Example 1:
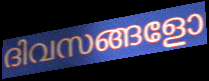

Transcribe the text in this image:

ദിവസങ്ങളോ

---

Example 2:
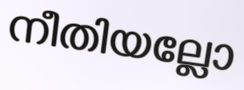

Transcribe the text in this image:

നീതിയല്ലോ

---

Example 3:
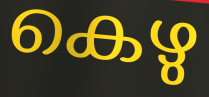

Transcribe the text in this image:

കെഴു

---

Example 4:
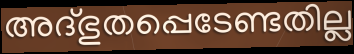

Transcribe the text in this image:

അദ്ഭുതപ്പെടേണ്ടതില്ല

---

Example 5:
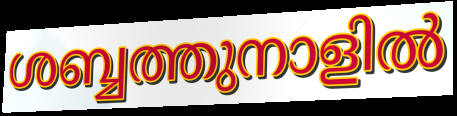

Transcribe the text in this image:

ശബ്ബത്തുനാളിൽ